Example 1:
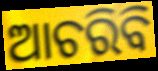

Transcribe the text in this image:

ଆଚରିବି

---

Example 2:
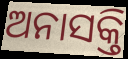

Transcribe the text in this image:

ଅନାସକ୍ତି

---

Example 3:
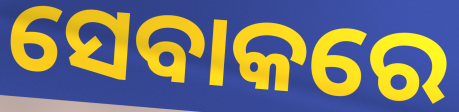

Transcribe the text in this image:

ସେବାକରେ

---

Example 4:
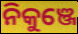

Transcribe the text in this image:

ନିକୁଞ୍ଜେ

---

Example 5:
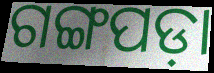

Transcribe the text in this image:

ଗଙ୍ଗପଡ଼ା